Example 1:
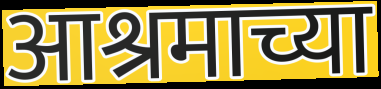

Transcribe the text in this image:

आश्रमाच्या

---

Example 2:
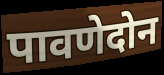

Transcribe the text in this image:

पावणेदोन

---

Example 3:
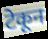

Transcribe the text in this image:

टेकून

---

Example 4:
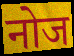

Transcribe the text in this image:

नोज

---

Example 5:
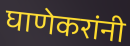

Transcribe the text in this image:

घाणेकरांनी